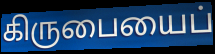
கிருபையைப்